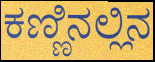
ಕಣ್ಣಿನಲ್ಲಿನ